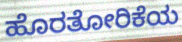
ಹೊರತೋರಿಕೆಯ